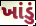
ખાંડું